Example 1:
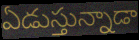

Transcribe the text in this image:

ఏడుస్తున్నాడా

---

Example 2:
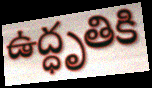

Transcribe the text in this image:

ఉద్ధృతికి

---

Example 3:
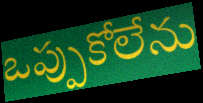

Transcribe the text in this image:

ఒప్పుకోలేను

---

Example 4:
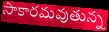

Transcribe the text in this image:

సాకారమవుతున్న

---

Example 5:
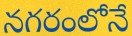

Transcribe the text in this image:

నగరంలోనే